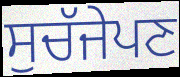
ਸੁਚੱਜੇਪਣ